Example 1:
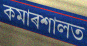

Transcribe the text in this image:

কমাৰশালত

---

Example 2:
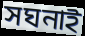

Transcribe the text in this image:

সঘনাই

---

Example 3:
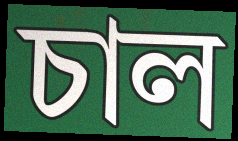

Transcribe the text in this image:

চাল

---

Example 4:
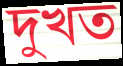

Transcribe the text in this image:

দুখত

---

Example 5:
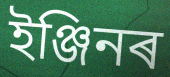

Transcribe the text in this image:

ইঞ্জিনৰ